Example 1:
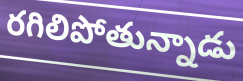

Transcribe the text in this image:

రగిలిపోతున్నాడు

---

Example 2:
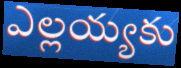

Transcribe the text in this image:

ఎల్లయ్యకు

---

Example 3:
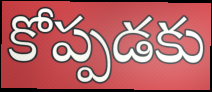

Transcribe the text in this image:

కోప్పడకు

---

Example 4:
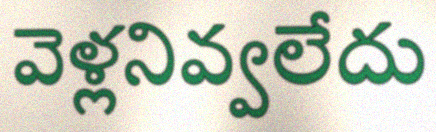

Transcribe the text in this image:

వెళ్లనివ్వలేదు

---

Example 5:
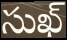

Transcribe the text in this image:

సుఖ్